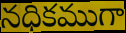
నధికముగా